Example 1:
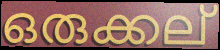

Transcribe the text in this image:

ഒരുക്കല്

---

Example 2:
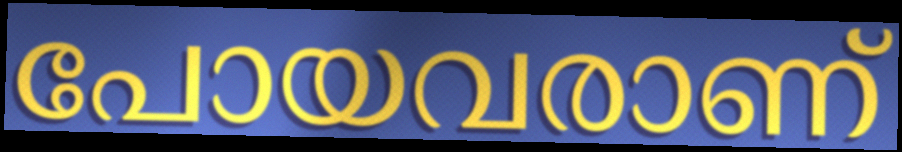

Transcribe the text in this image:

പോയവരാണ്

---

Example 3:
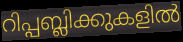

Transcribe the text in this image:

റിപ്പബ്ലിക്കുകളിൽ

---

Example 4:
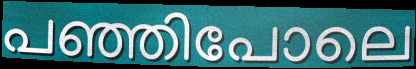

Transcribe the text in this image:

പഞ്ഞിപോലെ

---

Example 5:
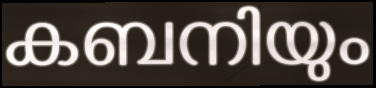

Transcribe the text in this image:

കബനിയും